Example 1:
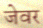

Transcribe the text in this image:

जेवर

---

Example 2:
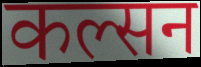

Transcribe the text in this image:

कल्सन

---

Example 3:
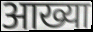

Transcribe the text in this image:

आख्या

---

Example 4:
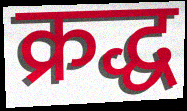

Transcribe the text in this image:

क्रद्ध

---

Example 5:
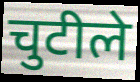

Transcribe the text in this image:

चुटीले